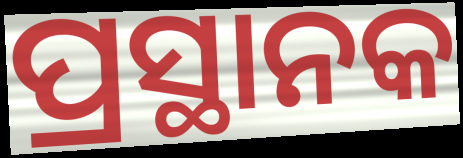
ପ୍ରସ୍ଥାନକ